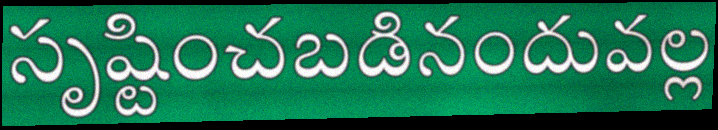
సృష్టించబడినందువల్ల